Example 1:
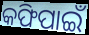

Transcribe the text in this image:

କଫିପାଇଁ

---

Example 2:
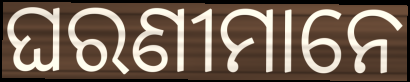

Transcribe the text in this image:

ଘରଣୀମାନେ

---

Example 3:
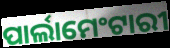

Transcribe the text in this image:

ପାର୍ଲାମେଂଟାରୀ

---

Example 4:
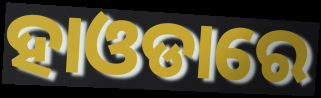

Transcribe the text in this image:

ହାଓଡାରେ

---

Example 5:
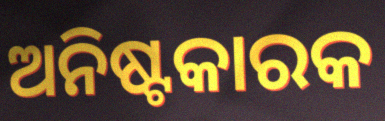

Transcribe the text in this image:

ଅନିଷ୍ଟକାରକ